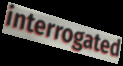
interrogated